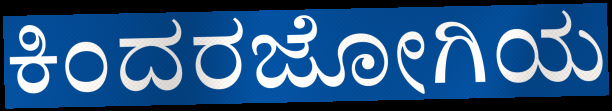
ಕಿಂದರಜೋಗಿಯ